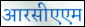
आरसीएएम